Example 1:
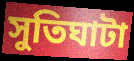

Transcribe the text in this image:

সুতিঘাটা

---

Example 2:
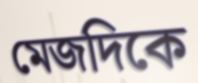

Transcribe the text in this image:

মেজদিকে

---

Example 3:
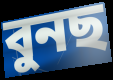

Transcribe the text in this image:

বুনছ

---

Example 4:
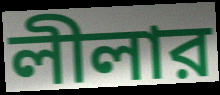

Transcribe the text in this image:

লীলার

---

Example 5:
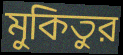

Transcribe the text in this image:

মুকিতুর